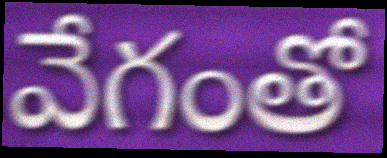
వేగంతో